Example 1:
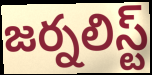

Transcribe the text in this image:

జర్నలిస్ట్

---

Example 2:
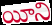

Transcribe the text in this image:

యీని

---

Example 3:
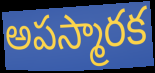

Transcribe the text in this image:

అపస్మారక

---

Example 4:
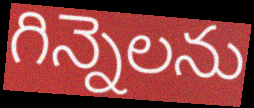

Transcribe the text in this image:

గిన్నెలను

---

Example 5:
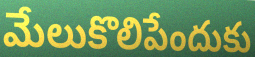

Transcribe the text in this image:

మేలుకొలిపేందుకు